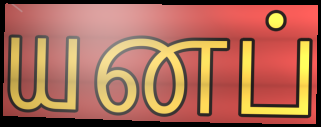
யனப்